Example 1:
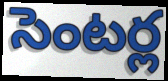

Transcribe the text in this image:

సెంటర్ల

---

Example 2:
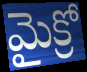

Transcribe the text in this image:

మైక్రో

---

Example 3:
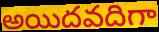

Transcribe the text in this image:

అయిదవదిగా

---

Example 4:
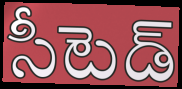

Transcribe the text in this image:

సీటెడ్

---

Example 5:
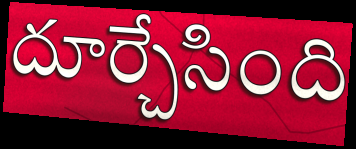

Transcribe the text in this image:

దూర్చేసింది